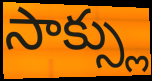
సాక్స్లు